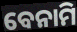
ବେନାମି